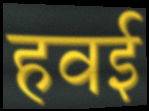
हवई